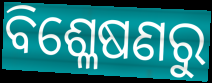
ବିଶ୍ଳେଷଣରୁ